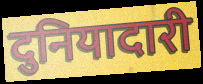
दुनियादारी